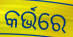
କର୍ଭରେ